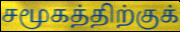
சமூகத்திற்குக்